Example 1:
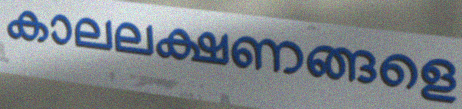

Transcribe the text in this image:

കാലലക്ഷണങ്ങളെ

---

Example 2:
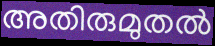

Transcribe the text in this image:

അതിരുമുതൽ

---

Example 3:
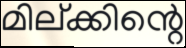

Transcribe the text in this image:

മില്ക്കിന്റെ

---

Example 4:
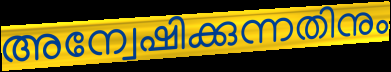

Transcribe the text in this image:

അന്വേഷിക്കുന്നതിനും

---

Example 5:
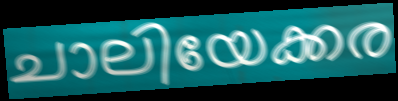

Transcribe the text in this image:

ചാലിയേക്കര